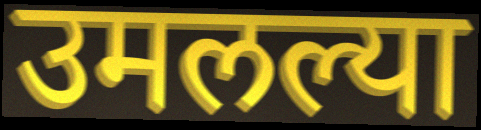
उमलल्या